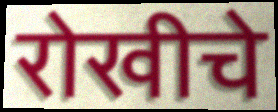
रोखीचे